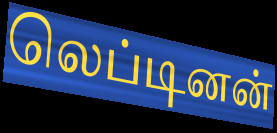
லெப்டினன்